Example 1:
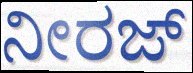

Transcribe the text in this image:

ನೀರಜ್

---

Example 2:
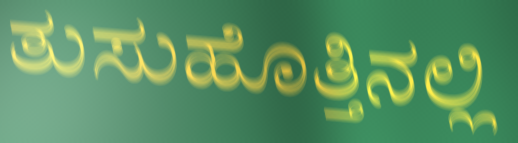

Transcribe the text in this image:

ತುಸುಹೊತ್ತಿನಲ್ಲಿ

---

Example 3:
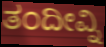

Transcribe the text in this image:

ತಂದೀವ್ನಿ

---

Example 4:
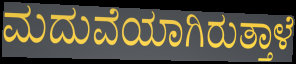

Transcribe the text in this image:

ಮದುವೆಯಾಗಿರುತ್ತಾಳೆ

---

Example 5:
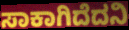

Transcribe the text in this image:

ಸಾಕಾಗಿದೆದನಿ